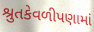
શ્રુતકેવળીપણામાં